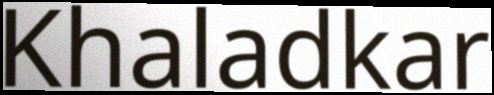
Khaladkar